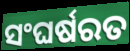
ସଂଘର୍ଷରତ